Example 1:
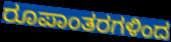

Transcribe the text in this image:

ರೂಪಾಂತರಗಳಿಂದ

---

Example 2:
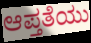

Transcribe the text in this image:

ಆಪ್ತತೆಯು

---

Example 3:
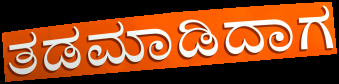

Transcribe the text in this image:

ತಡಮಾಡಿದಾಗ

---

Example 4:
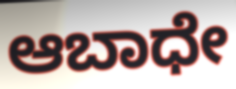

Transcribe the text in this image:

ಆಬಾಧೇ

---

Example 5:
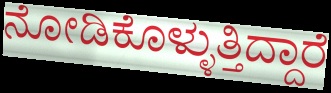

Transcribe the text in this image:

ನೋಡಿಕೊಳ್ಳುತ್ತಿದ್ದಾರೆ